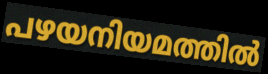
പഴയനിയമത്തിൽ